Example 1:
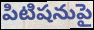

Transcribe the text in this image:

పిటిషనుపై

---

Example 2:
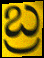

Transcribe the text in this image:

బ్ర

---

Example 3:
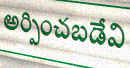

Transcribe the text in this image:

అర్పించబడేవి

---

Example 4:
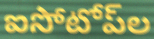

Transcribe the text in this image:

ఐసోటోప్‌ల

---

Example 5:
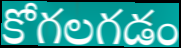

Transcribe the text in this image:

కోగలగడం